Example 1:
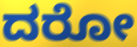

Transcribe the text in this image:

ದರೋ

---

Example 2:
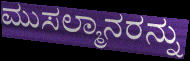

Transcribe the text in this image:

ಮುಸಲ್ಮಾನರನ್ನು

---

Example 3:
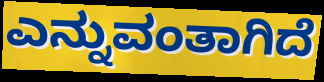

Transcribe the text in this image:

ಎನ್ನುವಂತಾಗಿದೆ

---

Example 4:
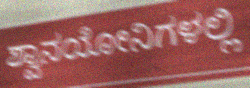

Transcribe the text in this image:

ಶ್ವಾನಯೋನಿಗಳಲ್ಲಿ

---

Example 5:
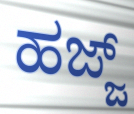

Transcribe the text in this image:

ಹಜ್ಜ್